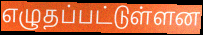
எழுதப்பட்டுள்ளன